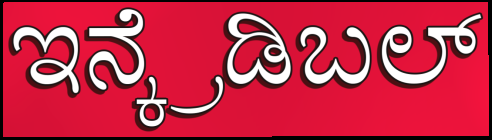
ಇನ್ಕ್ರೆಡಿಬಲ್